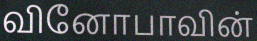
வினோபாவின்